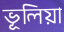
ভূলিয়া